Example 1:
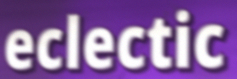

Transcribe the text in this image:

eclectic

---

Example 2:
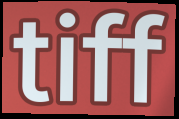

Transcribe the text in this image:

tiff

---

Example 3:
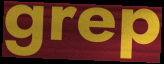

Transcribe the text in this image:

grep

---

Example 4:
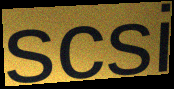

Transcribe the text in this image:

scsi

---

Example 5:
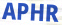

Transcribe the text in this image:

APHR